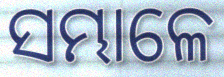
ସମ୍ଭାଳେ